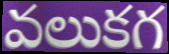
వలుకగ